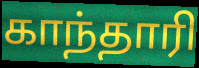
காந்தாரி